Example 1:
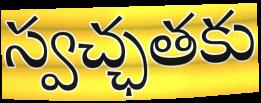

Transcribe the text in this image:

స్వచ్ఛతకు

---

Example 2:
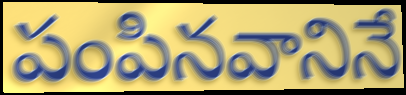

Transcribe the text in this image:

పంపినవానినే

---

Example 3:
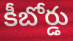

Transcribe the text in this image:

కీబోర్డు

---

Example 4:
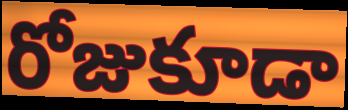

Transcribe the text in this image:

రోజుకూడా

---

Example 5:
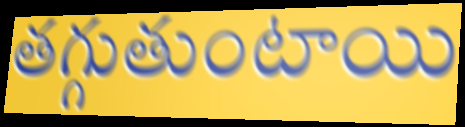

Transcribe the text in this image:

తగ్గుతుంటాయి